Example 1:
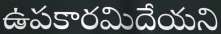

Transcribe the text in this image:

ఉపకారమిదేయని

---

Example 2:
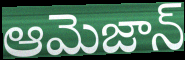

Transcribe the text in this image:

ఆమెజాన్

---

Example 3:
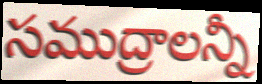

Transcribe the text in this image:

సముద్రాలన్నీ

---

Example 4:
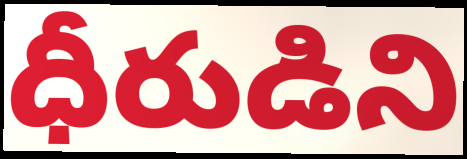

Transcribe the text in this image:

ధీరుడిని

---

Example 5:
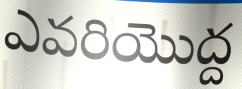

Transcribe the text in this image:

ఎవరియొద్ద